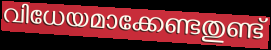
വിധേയമാക്കേണ്ടതുണ്ട്